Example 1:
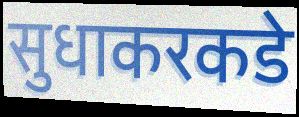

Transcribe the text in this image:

सुधाकरकडे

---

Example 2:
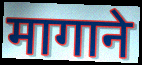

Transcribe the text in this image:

मागाने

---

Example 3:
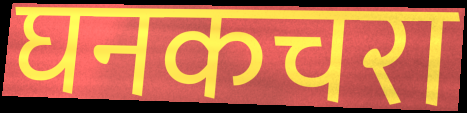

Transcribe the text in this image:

घनकचरा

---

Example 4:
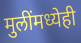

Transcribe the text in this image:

मुलींमध्येही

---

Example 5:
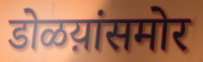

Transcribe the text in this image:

डोळय़ांसमोर